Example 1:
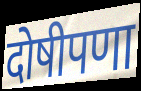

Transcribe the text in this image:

दोषीपणा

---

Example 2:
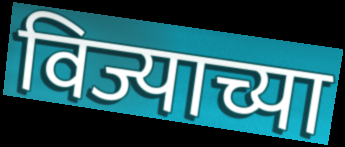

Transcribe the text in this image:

विज्याच्या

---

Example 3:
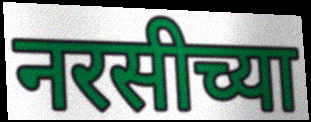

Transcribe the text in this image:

नरसीच्या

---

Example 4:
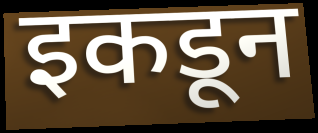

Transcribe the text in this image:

इकडून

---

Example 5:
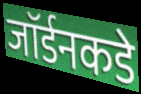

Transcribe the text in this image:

जॉर्डनकडे